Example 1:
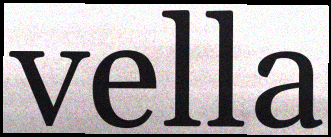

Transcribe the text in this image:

vella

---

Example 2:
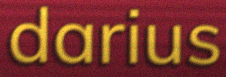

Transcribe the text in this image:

darius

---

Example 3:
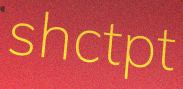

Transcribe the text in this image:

shctpt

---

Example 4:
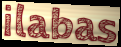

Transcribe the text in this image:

ilabas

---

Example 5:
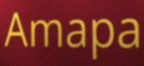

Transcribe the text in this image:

Amapa